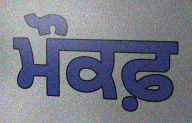
ਮੌਕਫ਼